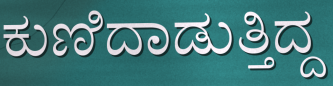
ಕುಣಿದಾಡುತ್ತಿದ್ದ